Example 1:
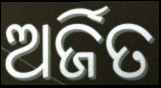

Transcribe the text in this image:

ଅର୍ଜିତ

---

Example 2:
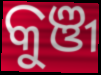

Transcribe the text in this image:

କୁଞ୍ଜ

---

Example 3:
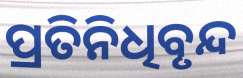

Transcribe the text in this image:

ପ୍ରତିନିଧିବୃନ୍ଦ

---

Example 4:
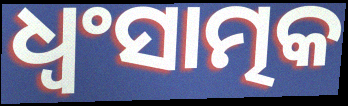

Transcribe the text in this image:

ଧ୍ଵଂସାତ୍ମକ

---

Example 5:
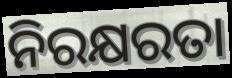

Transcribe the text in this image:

ନିରକ୍ଷରତା